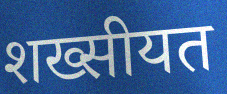
शख्सीयत